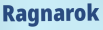
Ragnarok